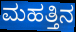
ಮಹತ್ತಿನ